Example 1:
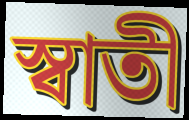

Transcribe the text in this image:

স্বাতী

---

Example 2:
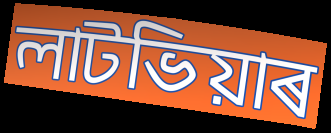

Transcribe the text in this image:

লাটভিয়াৰ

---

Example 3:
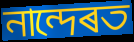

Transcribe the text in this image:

নান্দেৰত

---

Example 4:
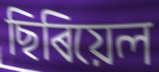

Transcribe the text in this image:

ছিৰিয়েল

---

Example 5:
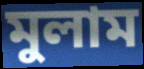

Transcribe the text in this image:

মুলাম